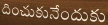
దించుకునేందుకు